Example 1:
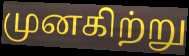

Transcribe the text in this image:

முனகிற்று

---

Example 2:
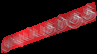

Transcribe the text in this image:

முடிப்பதற்குத்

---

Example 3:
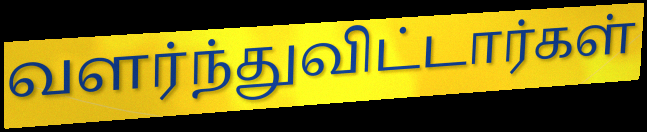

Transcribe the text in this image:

வளர்ந்துவிட்டார்கள்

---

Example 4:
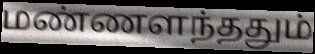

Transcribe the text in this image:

மண்ணளந்ததும்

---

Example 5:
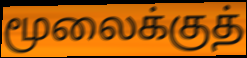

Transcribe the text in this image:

மூலைக்குத்